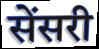
सेंसरी